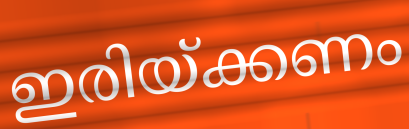
ഇരിയ്ക്കണം